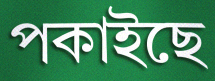
পকাইছে